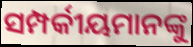
ସମ୍ପର୍କୀୟମାନଙ୍କୁ